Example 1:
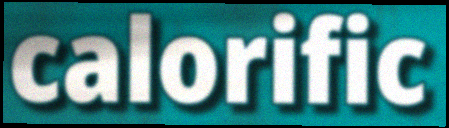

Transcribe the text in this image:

calorific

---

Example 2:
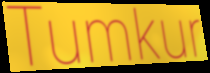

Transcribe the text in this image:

Tumkur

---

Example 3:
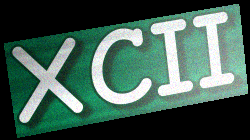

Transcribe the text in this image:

XCII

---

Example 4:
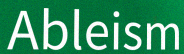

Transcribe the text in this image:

Ableism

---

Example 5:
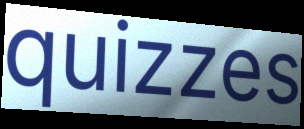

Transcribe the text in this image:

quizzes